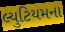
લ્યુટિયમના